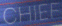
CHIEF